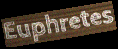
Euphretes